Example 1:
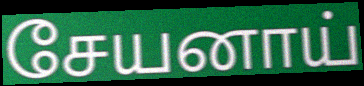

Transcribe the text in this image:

சேயனாய்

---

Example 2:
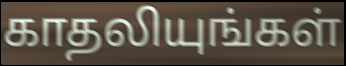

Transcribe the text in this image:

காதலியுங்கள்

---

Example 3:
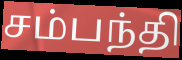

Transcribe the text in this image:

சம்பந்தி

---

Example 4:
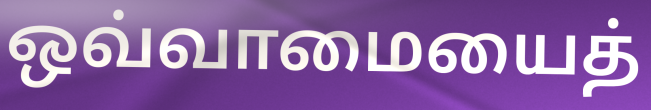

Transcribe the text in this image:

ஒவ்வாமையைத்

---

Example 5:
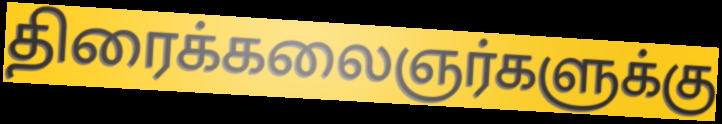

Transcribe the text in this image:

திரைக்கலைஞர்களுக்கு